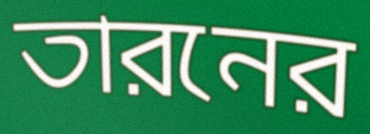
তারনের